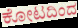
ಕೋಟದಿಂದ